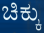
ಚಿಕ್ಕು